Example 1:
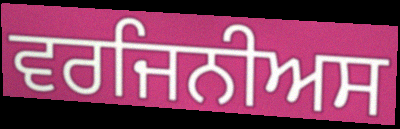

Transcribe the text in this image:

ਵਰਜਿਨੀਅਸ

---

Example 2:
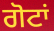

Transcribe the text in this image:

ਗੋਟਾਂ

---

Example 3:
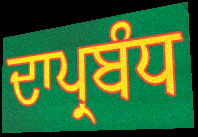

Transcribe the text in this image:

ਦਾਪ੍ਰਬੰਧ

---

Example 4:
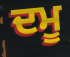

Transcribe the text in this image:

ਦਮੂ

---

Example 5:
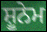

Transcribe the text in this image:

ਸ਼ੂਨੇਮ